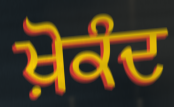
ਖ਼ੋਕੰਦ